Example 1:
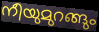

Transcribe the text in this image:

നീയുമുറങ്ങും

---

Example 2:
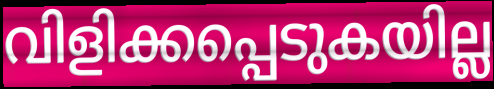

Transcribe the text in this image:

വിളിക്കപ്പെടുകയില്ല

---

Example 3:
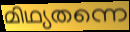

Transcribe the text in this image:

മിഥ്യതന്നെ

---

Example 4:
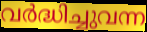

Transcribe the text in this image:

വർദ്ധിച്ചുവന്ന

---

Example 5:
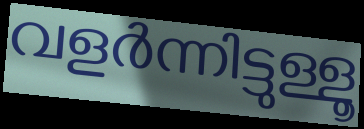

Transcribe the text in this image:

വളർന്നിട്ടുള്ളൂ